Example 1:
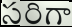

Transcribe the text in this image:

సరిగా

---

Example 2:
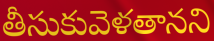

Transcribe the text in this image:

తీసుకువెళతానని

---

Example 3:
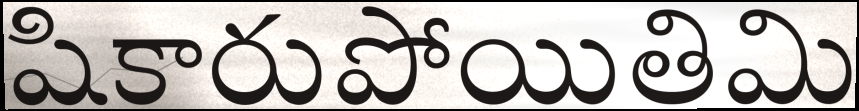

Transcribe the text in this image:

షికారుపోయితిమి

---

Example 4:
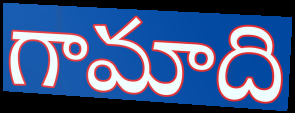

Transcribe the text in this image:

గామాది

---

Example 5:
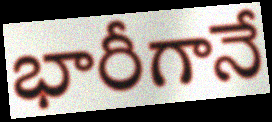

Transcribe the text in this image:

భారీగానే